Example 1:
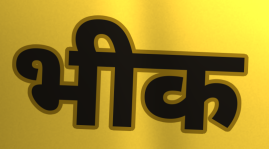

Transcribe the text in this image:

भीक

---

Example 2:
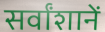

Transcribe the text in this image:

सर्वांशानें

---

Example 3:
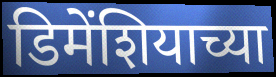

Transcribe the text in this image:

डिमेंशियाच्या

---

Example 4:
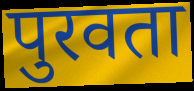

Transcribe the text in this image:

पुरवता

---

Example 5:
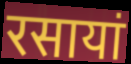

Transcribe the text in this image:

रसायां